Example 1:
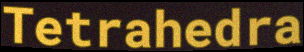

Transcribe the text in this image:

Tetrahedra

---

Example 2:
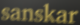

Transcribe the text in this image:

sanskar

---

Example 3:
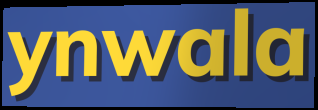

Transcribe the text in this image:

ynwala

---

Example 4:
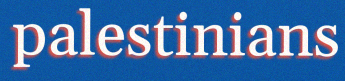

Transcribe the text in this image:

palestinians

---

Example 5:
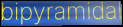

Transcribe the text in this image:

bipyramidal